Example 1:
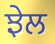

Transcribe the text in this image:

ਝੇਲ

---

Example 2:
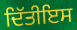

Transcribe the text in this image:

ਦਿੱਤੀਇਸ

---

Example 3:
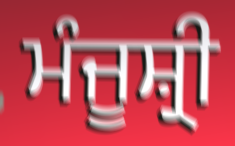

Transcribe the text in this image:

ਮੰਜੂਸ਼੍ਰੀ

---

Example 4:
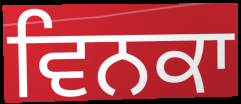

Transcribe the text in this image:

ਵਿਨਕਾ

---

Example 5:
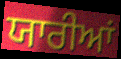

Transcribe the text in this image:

ਯਾਰੀਆਂ